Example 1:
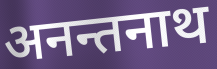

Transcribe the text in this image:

अनन्तनाथ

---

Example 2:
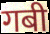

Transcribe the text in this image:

गबी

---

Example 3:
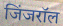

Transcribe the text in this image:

जिंजरॉल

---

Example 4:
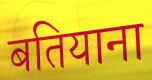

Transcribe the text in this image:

बतियाना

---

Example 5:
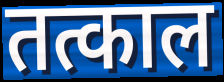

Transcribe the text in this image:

तत्काल